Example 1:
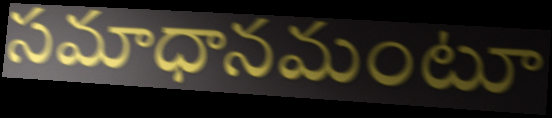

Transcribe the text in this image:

సమాధానమంటూ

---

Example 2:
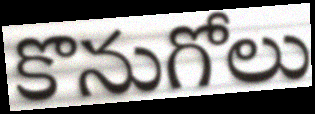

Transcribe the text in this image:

కొనుగోలు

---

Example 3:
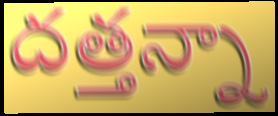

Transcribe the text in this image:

దత్తన్నా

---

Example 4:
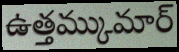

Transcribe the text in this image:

ఉత్తమ్కుమార్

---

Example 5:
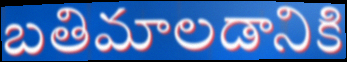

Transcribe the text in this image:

బతిమాలడానికి